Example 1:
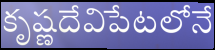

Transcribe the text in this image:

కృష్ణదేవిపేటలోనే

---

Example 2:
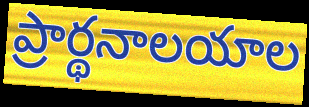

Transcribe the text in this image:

ప్రార్థనాలయాల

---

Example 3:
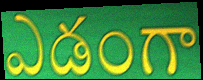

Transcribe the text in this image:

ఎడంగా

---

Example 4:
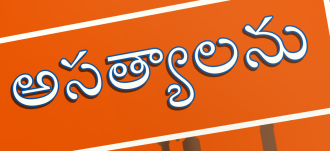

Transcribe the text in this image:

అసత్యాలను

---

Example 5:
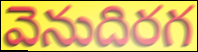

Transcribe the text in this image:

వెనుదిరగ